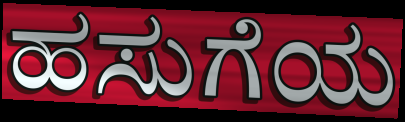
ಹಸುಗೆಯ